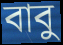
বাবু